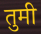
तुमी